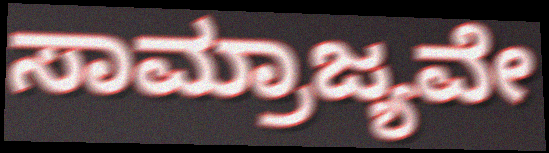
ಸಾಮ್ರಾಜ್ಯವೇ